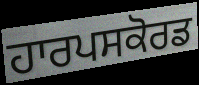
ਹਾਰਪਸਕੋਰਡ